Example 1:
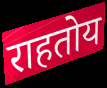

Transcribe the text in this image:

राहतोय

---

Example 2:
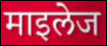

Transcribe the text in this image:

माइलेज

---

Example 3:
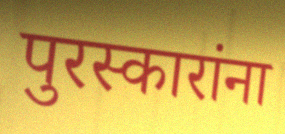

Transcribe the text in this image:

पुरस्कारांना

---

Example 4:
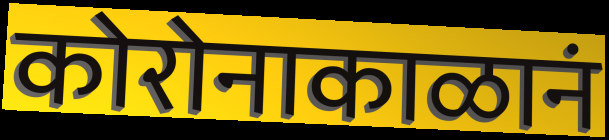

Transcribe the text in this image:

कोरोनाकाळानं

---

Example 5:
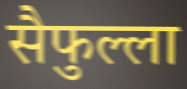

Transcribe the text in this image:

सैफुल्ला